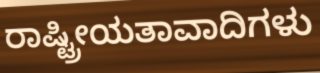
ರಾಷ್ಟ್ರೀಯತಾವಾದಿಗಳು